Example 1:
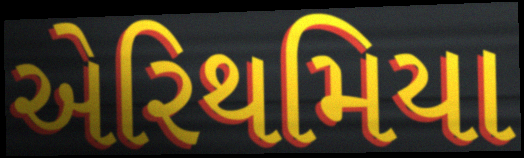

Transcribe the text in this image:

એરિથમિયા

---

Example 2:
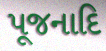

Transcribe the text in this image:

પૂજનાદિ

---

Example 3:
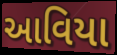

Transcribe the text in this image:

આવિયા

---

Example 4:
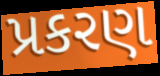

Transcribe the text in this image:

પ્રકરણ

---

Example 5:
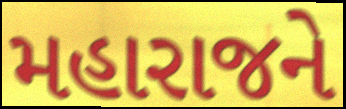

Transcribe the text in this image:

મહારાજને